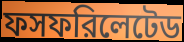
ফসফরিলেটেড